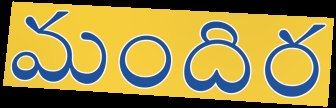
మందిర